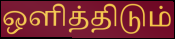
ஒளித்திடும்